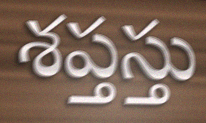
శప్తస్తు